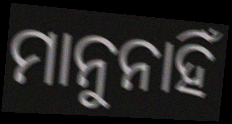
ମାନୁନାହିଁ